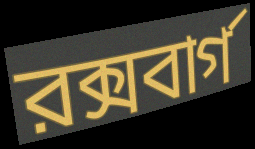
রক্সবার্গ